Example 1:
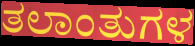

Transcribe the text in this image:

ತಲಾಂತುಗಳ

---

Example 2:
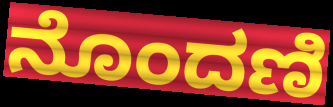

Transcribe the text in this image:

ನೊಂದಣಿ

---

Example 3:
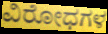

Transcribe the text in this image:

ವಿರೋಧಗಳ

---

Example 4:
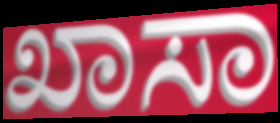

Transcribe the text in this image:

ಖಾಸಾ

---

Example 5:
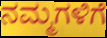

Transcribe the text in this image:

ನಮ್ಮಗಳಿಗೆ